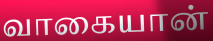
வாகையான்